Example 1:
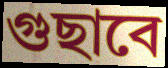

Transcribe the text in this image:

গুছাবে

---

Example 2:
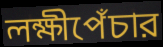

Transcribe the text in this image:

লক্ষীপেঁচার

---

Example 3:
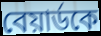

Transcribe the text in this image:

বেয়ার্ডকে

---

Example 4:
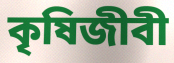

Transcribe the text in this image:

কৃষিজীবী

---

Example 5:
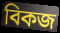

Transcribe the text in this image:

বিকজ